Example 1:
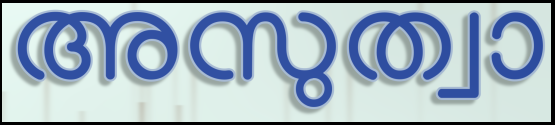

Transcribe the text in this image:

അസുത്വാ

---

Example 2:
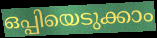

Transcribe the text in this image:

ഒപ്പിയെടുക്കാം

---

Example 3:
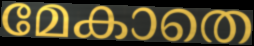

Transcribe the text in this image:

മേകാതെ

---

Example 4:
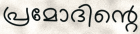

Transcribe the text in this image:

പ്രമോദിന്റെ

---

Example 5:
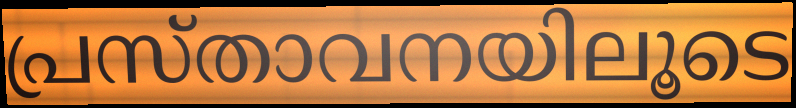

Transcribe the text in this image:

പ്രസ്താവനയിലൂടെ